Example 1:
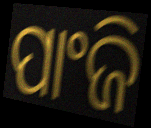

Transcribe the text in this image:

ପାଂଜି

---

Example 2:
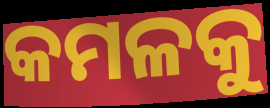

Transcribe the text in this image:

କମଳକୁ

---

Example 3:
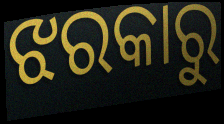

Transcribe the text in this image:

ଝରକାରୁ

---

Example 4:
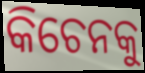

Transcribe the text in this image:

କିଚେନକୁ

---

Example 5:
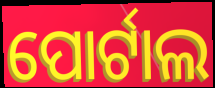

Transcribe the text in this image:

ପୋର୍ଟାଲ